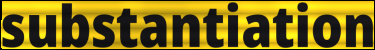
substantiation